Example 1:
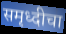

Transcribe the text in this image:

समृध्दीचा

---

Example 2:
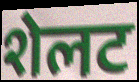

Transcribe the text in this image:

शेलट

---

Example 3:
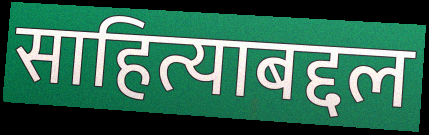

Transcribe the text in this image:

साहित्याबद्दल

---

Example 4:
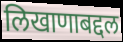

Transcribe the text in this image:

लिखाणाबद्दल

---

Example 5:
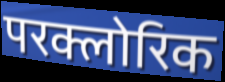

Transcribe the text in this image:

परक्लोरिक